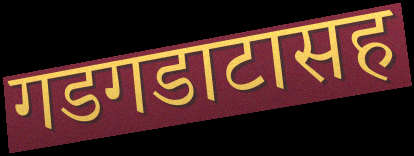
गडगडाटासह